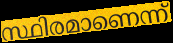
സ്ഥിരമാണെന്ന്